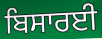
ਬਿਸਾਰਈ